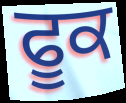
ਫੂਕ